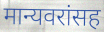
मान्यवरांसह